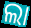
ଲା